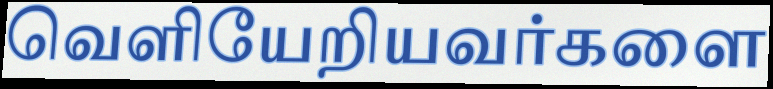
வெளியேறியவர்களை